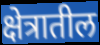
क्षेत्रातील